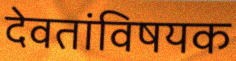
देवतांविषयक